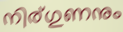
നിര്ഗുണനും